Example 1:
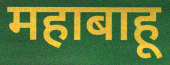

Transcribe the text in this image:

महाबाहू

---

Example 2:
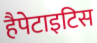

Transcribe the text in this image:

हैपेटाइटिस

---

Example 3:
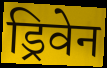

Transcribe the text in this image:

ड्रिवेन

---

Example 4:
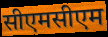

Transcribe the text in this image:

सीएमसीएम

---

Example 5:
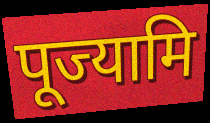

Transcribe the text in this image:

पूज्यामि